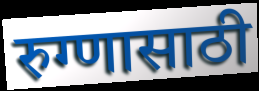
रुग्णासाठी